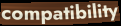
compatibility